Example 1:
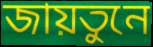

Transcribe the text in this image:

জায়তুনে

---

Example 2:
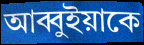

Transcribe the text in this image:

আব্বুইয়াকে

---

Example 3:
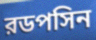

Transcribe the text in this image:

রডপসিন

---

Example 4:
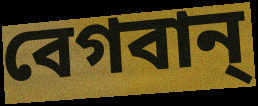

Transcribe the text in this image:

বেগবান্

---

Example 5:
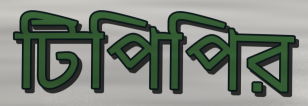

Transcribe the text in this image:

টিপিপির